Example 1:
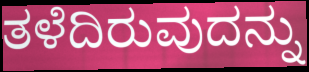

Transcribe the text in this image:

ತಳೆದಿರುವುದನ್ನು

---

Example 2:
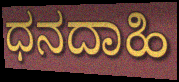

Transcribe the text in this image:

ಧನದಾಹಿ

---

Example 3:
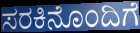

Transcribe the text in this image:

ಸರಕಿನೊಂದಿಗೆ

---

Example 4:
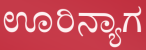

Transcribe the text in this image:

ಊರಿನ್ಯಾಗ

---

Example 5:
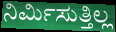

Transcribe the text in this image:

ನಿರ್ಮಿಸುತ್ತಿಲ್ಲ